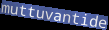
muttuvantide